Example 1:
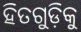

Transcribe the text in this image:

ହିତଗୁଡ଼ିକୁ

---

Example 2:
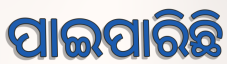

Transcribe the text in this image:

ପାଇପାରିଛି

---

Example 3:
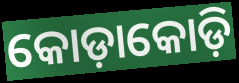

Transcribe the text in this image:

କୋଡ଼ାକୋଡ଼ି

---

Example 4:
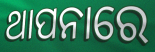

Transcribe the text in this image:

ଥାପନାରେ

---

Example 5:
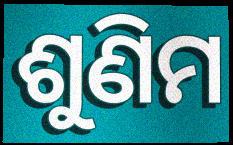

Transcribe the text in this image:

ଶୁଣିମ